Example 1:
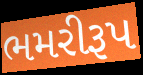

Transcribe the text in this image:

ભમરીરૂપ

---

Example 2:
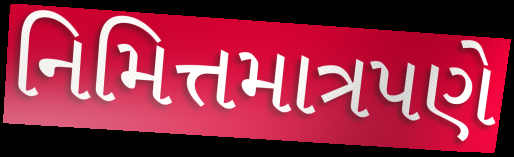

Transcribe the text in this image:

નિમિત્તમાત્રપણે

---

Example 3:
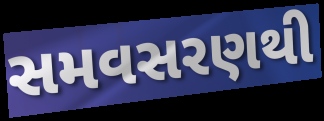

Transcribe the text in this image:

સમવસરણથી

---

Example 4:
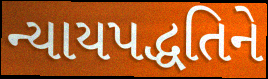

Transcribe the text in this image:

ન્યાયપદ્ધતિને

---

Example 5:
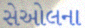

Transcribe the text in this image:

સેઓલના